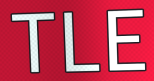
TLE